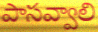
పాసవ్వాలి